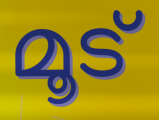
മൂട്